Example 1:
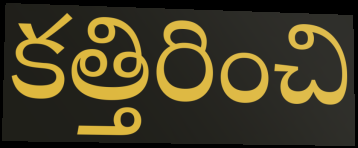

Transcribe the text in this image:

కత్తిరించి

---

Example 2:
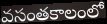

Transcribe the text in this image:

వసంతకాలంలో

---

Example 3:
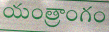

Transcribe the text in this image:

యంత్రాంగం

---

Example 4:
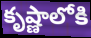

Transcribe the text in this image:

కృష్ణాలోకి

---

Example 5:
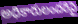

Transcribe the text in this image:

అధికారులందరిపై